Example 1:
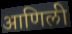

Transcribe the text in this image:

आणिली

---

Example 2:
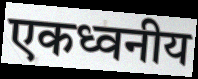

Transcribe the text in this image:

एकध्वनीय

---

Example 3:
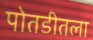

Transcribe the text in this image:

पोतडीतला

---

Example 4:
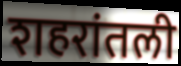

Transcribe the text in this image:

शहरांतली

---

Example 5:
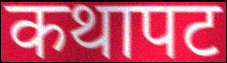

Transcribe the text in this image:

कथापट